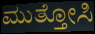
ಮುತ್ತೋಸಿ